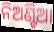
ନିଅଣ୍ଟିଆ